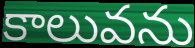
కాలువను